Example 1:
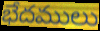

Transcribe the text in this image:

భేదములు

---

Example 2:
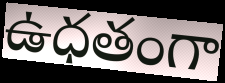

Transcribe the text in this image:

ఉధతంగా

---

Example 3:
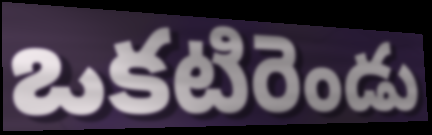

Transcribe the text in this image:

ఒకటిరెండు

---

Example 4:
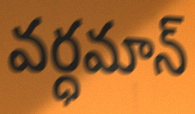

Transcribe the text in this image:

వర్ధమాన్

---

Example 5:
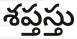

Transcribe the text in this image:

శప్తస్తు